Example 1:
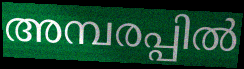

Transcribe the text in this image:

അമ്പരപ്പിൽ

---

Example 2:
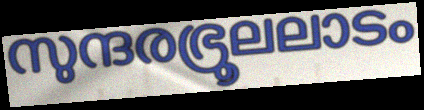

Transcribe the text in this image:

സുന്ദരഭ്രൂലലാടം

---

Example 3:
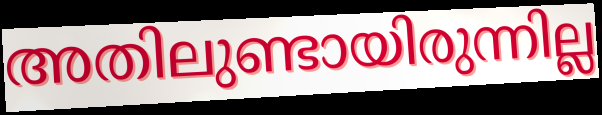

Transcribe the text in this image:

അതിലുണ്ടായിരുന്നില്ല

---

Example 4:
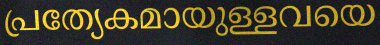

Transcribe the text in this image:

പ്രത്യേകമായുള്ളവയെ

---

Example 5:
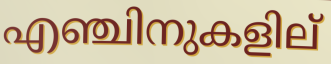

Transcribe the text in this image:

എഞ്ചിനുകളില്